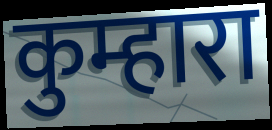
कुम्हारा